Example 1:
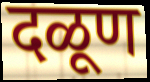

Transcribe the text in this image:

दळूण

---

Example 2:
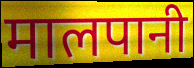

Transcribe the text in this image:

मालपानी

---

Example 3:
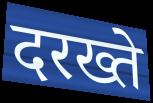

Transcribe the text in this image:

दरख्ते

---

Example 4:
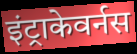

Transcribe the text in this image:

इंट्राकेवर्नस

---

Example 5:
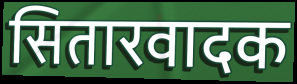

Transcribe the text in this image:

सितारवादक